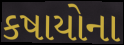
કષાયોના